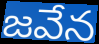
జవేన